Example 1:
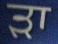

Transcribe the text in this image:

ੜਾ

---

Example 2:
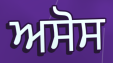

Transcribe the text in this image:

ਅਸੋਸ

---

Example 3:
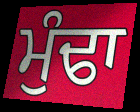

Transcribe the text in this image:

ਮੁੰਢਾ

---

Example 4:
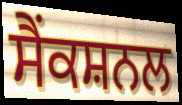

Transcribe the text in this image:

ਸੈਂਕਸ਼ਨਲ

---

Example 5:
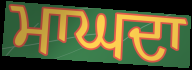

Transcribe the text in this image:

ਮਾਘਦਾ